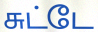
சுட்டே